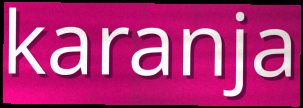
karanja